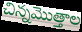
చిన్నమొత్తాల